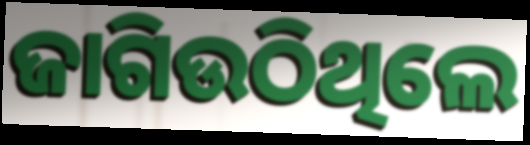
ଜାଗିଉଠିଥିଲେ